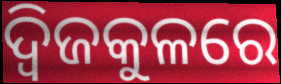
ଦ୍ୱିଜକୁଳରେ